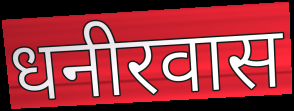
धनीरवास